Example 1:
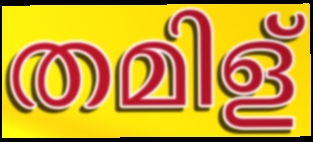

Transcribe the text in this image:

തമിള്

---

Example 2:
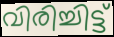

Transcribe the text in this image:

വിരിച്ചിട്ട്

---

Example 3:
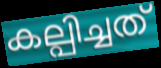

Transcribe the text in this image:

കല്പിച്ചത്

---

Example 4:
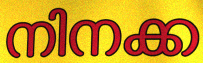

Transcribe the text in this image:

നിനക്ക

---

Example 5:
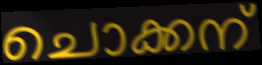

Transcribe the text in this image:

ചൊക്കന്